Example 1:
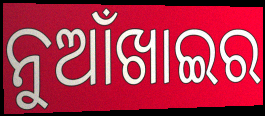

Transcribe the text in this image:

ନୁଆଁଖାଇର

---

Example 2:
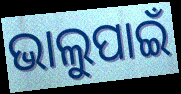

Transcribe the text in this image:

ଭାଲୁପାଇଁ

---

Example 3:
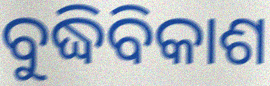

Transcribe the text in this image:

ବୁଦ୍ଧିବିକାଶ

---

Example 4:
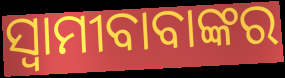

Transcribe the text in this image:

ସ୍ଵାମୀବାବାଙ୍କର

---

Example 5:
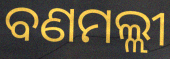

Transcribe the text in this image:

ବଣମଲ୍ଲୀ